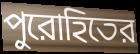
পুরোহিতের